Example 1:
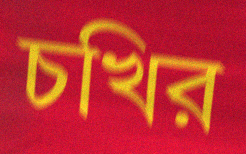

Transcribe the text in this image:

চখির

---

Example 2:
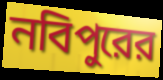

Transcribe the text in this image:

নবিপুরের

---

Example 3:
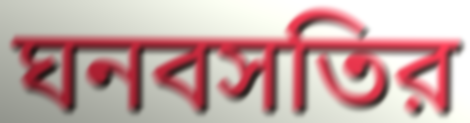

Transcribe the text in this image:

ঘনবসতির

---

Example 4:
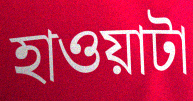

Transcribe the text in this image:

হাওয়াটা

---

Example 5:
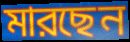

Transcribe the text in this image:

মারছেন